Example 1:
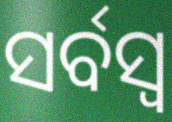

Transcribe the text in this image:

ସର୍ବସ୍ୱ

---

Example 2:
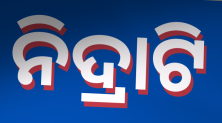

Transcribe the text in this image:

ନିଦ୍ରାଟି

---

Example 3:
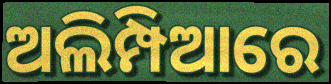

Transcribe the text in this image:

ଅଲିମ୍ପିଆରେ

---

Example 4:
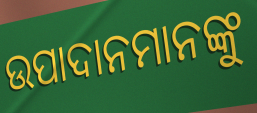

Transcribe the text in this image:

ଉପାଦାନମାନଙ୍କୁ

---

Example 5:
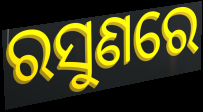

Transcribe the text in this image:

ରସୁଣରେ